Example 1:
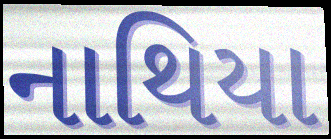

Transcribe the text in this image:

નાથિયા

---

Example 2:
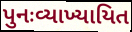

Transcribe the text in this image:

પુનઃવ્યાખ્યાયિત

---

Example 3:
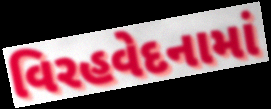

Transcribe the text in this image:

વિરહવેદનામાં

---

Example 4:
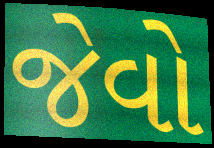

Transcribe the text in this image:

જેવો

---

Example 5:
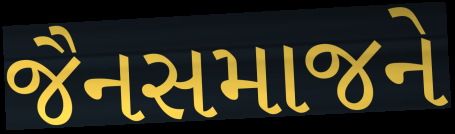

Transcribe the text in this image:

જૈનસમાજને